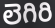
లెగిరి